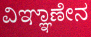
ವಿಞ್ಞಾಣೇನ